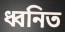
ধ্বনিত